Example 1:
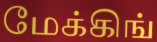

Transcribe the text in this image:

மேக்கிங்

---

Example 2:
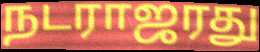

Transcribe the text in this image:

நடராஜரது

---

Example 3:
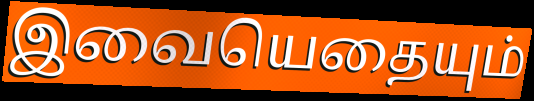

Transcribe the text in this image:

இவையெதையும்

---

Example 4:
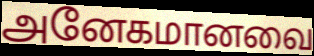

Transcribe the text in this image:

அனேகமானவை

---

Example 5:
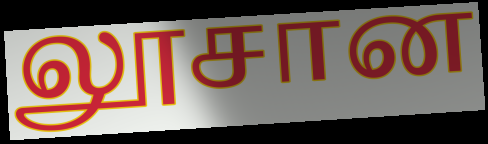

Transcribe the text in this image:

லூசான